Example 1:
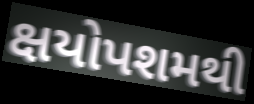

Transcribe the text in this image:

ક્ષયોપશમથી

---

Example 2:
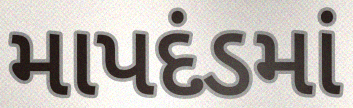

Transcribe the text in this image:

માપદંડમાં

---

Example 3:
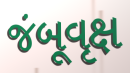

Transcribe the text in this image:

જંબૂવૃક્ષ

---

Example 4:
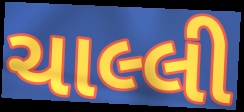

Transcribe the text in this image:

ચાલ્લી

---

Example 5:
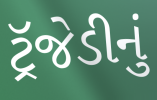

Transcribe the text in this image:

ટ્રૅજેડીનું